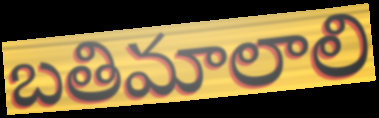
బతిమాలాలి